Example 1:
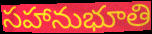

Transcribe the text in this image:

సహానుభూతి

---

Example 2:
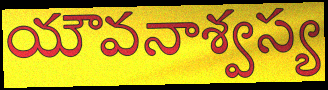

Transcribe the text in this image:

యౌవనాశ్వస్య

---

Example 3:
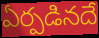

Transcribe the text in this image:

ఏర్పడినదే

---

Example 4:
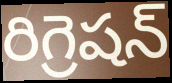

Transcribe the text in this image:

రిగ్రెషన్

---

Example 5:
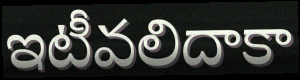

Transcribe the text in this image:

ఇటీవలిదాకా